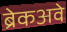
ब्रेकअवे